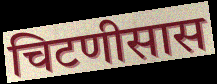
चिटणीसास